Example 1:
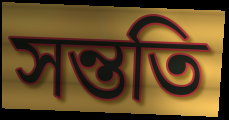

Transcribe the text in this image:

সন্ততি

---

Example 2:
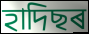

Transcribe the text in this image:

হাদিছৰ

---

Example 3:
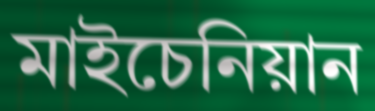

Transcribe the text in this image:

মাইচেনিয়ান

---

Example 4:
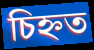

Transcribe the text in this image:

চিহ্নত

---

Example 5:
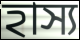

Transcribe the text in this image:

হাস্য